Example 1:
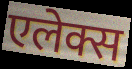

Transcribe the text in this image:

एलेक्स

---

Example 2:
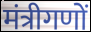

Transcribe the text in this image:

मंत्रीगणों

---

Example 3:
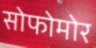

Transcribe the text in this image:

सोफोमोर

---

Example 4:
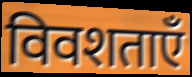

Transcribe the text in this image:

विवशताएँ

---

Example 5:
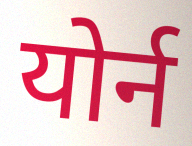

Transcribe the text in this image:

योर्न